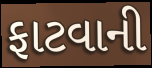
ફાટવાની